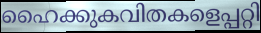
ഹൈക്കുകവിതകളെപ്പറ്റി